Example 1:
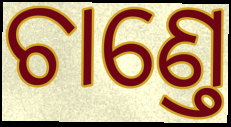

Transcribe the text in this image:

ଚାଣ୍ତେ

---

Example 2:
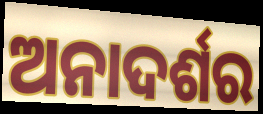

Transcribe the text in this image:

ଅନାଦର୍ଶର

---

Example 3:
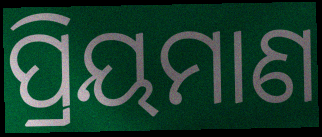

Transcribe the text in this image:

ପ୍ରିୟମାଣ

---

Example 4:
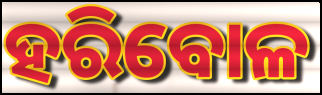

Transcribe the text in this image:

ହରିବୋଳ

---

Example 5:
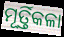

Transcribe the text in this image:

ମୂର୍ତ୍ତିକଳା